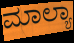
ಮಾಲ್ಯಾ